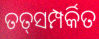
ତତ୍‌ସମ୍ପର୍କିତ